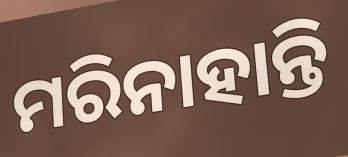
ମରିନାହାନ୍ତି